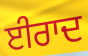
ਈਰਾਦ